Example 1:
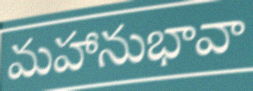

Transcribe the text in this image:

మహానుభావా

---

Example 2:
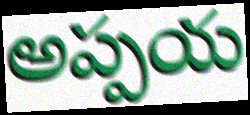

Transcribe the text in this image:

అప్పయ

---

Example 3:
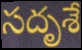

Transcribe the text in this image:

సదృశే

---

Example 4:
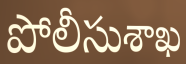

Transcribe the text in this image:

పోలీసుశాఖ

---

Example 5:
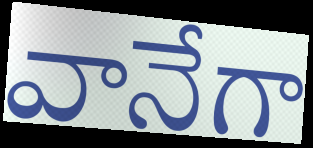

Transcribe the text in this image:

వానేగా